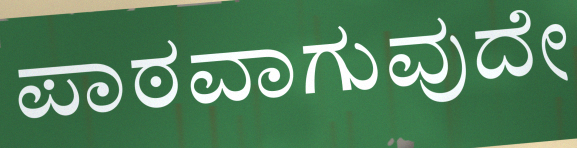
ಪಾಠವಾಗುವುದೇ